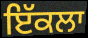
ਇੱਕਲਾ